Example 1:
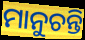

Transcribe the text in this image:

ମାନୁଚନ୍ତି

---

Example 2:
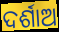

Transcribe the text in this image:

ଦର୍ଶାଅ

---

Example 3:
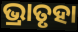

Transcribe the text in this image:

ଭ୍ରାତୃହା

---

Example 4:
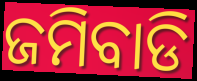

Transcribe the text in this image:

ଜମିବାଡି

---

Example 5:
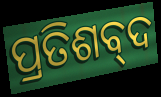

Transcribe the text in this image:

ପ୍ରତିଶବ୍‌ଦ